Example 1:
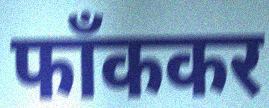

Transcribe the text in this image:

फाँककर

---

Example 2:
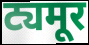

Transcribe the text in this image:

ट्यमूर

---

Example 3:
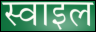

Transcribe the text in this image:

स्वाइल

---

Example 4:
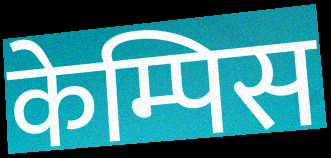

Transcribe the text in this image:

केम्पिस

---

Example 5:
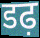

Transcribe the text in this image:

डढ़